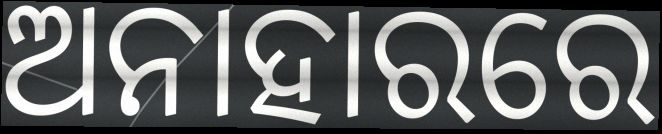
ଅନାହାରରେ